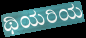
ಥಿಯರಿಯ